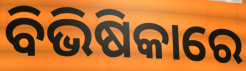
ବିଭିଷିକାରେ